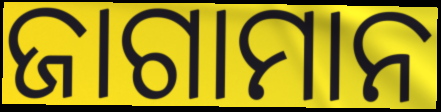
ଜାଗାମାନ